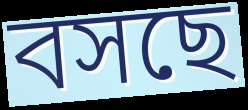
বসছে